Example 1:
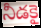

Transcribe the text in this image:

నీడకై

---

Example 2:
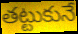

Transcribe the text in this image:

తట్టుకునే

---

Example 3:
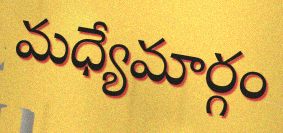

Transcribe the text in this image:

మధ్యేమార్గం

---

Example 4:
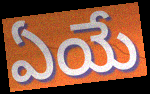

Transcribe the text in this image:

ఏయే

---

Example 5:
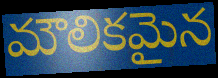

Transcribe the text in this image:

మౌలికమైన